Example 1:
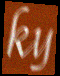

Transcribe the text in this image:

ky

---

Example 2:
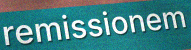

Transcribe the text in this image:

remissionem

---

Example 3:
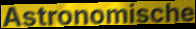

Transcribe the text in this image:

Astronomische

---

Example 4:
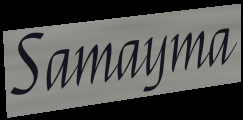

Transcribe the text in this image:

Samayma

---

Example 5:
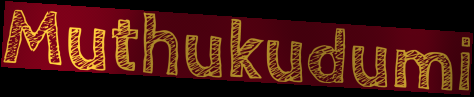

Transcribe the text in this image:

Muthukudumi